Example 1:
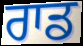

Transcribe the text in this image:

ਰਾਡ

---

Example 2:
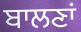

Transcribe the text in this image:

ਬਾਲਣਾਂ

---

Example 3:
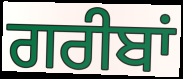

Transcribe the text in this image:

ਗਰੀਬਾਂ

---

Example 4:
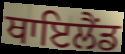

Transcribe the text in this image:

ਥਾਇਲੈਂਡ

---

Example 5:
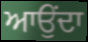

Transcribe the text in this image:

ਆਉਂਦਾ